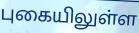
புகையிலுள்ள